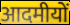
आदमीयों